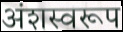
अंशस्वरूप